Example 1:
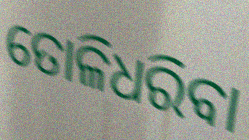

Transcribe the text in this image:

ତୋଳିଧରିବା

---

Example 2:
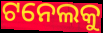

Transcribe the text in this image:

ଟନେଲକୁ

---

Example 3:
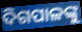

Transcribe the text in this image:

ଦିଗପାଳଙ୍କୁ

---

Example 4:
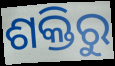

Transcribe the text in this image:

ଶକ୍ତିରୁ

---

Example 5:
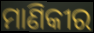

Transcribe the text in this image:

ମାଣିକୀର